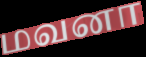
மவனா